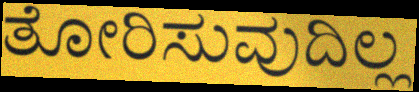
ತೋರಿಸುವುದಿಲ್ಲ